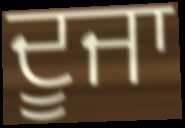
ਦੂਜਾ